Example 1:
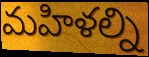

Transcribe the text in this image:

మహిళల్ని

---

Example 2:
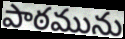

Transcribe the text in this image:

పాఠమును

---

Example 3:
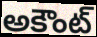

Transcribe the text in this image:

అకౌంట్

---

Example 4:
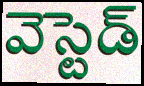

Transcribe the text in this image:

వెస్టెడ్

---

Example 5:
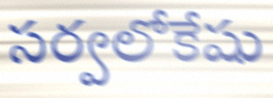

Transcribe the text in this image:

సర్వలోకేషు